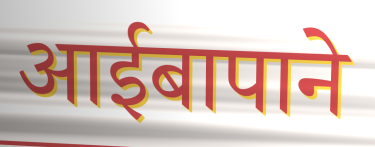
आईबापाने